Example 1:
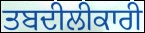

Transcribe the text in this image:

ਤਬਦੀਲੀਕਾਰੀ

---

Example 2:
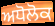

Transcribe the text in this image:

ਅਧੋਲੋਕ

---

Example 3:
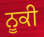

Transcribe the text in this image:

ਨੂਕੀ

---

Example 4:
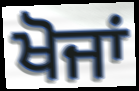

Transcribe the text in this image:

ਖੋਜਾਂ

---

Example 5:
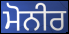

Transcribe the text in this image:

ਮੋਨੀਰ